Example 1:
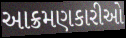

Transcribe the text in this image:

આક્રમણકારીઓ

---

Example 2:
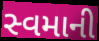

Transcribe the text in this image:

સ્વમાની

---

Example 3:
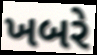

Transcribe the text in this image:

ખબરે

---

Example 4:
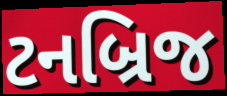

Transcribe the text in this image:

ટનબ્રિજ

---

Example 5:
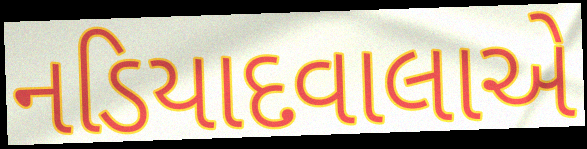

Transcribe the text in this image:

નડિયાદવાલાએ